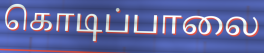
கொடிப்பாலை